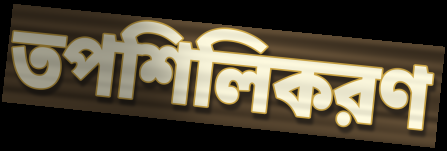
তপশিলিকরণ